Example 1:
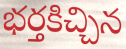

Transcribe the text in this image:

భర్తకిచ్చిన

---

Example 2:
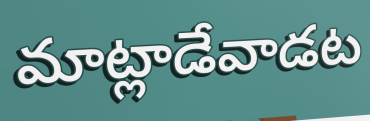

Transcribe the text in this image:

మాట్లాడేవాడట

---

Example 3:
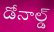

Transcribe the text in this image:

డోనాల్డ్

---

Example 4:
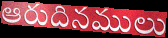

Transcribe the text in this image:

ఆరుదినములు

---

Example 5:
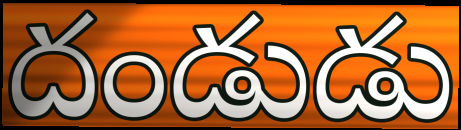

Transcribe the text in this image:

దండుడు